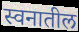
स्वनातील